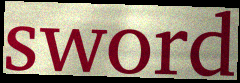
sword